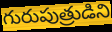
గురుపుత్రుడిని